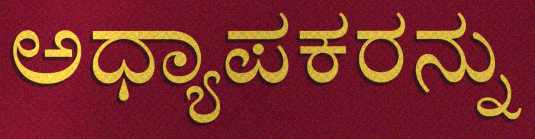
ಅಧ್ಯಾಪಕರನ್ನು